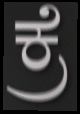
ಕ್ರೆ